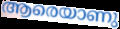
ആരെയാണു